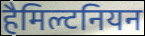
हैमिल्टनियन